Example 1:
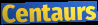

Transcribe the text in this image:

Centaurs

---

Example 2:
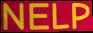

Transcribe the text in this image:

NELP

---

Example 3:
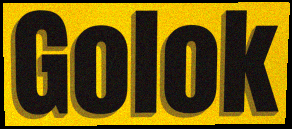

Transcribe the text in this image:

Golok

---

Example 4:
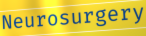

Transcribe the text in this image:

Neurosurgery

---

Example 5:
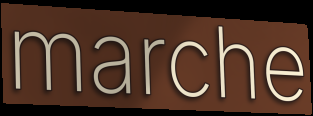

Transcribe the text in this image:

marche